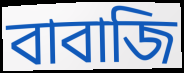
বাবাজি